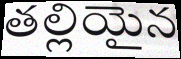
తల్లియైన